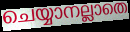
ചെയ്യാനല്ലാതെ